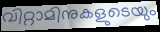
വിറ്റാമിനുകളുടെയും